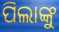
ପିଲାଙ୍କୁ